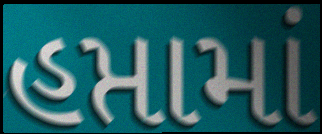
હપ્તામાં